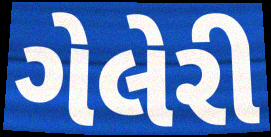
ગેલેરી